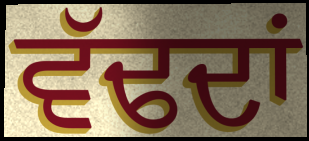
ਵੱਢਦਾਂ